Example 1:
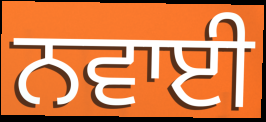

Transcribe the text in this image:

ਨਵਾਈ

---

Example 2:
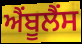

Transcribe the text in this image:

ਐੰਬੂਲੈਂਸ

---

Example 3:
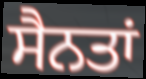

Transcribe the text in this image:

ਸੈਨਤਾਂ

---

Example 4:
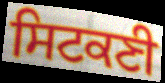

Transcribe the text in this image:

ਸਿਟਕਣੀ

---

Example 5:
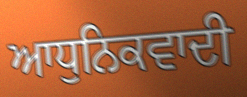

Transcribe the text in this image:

ਆਧੁਨਿਕਵਾਦੀ